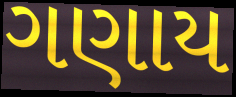
ગણાય